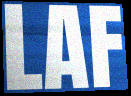
LAF